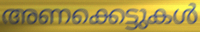
അണക്കെട്ടുകൾ